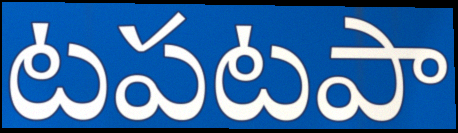
టపటపా